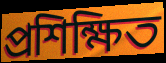
প্ৰশিক্ষিত